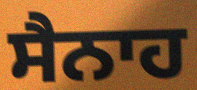
ਸੈਨਾਹ